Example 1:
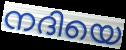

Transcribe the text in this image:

നദിയെ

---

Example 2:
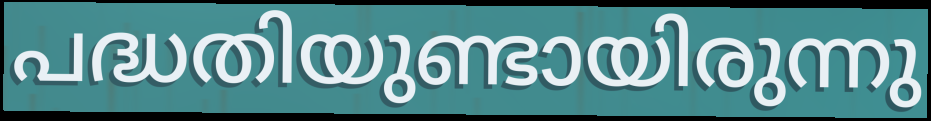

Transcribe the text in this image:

പദ്ധതിയുണ്ടായിരുന്നു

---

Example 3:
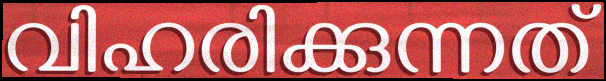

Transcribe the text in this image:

വിഹരിക്കുന്നത്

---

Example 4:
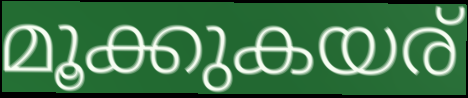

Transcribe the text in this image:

മൂക്കുകയര്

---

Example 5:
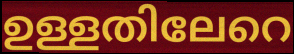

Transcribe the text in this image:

ഉള്ളതിലേറെ